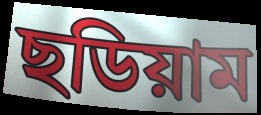
ছডিয়াম